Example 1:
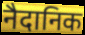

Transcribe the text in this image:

नैदानिक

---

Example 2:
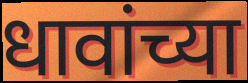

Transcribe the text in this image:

धावांच्या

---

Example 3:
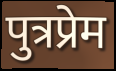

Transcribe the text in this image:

पुत्रप्रेम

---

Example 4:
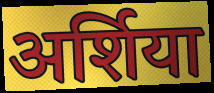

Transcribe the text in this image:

अर्शिया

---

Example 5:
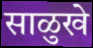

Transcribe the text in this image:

साळुखे